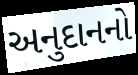
અનુદાનનો